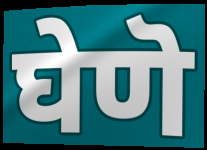
घेणॆ